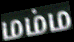
மம்ம